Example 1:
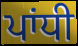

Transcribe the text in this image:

ਪਾਂਧੀ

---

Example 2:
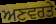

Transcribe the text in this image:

ਅਣਵਰਤੇ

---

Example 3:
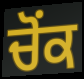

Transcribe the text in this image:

ਚੋਂਕ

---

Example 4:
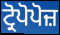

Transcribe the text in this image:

ਟ੍ਰੋਪੋਪੋਜ਼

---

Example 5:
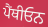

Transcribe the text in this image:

ਪੈਂਥੀਓਨ